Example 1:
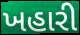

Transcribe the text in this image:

ખહારી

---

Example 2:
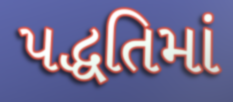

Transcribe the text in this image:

પદ્ધતિમાં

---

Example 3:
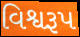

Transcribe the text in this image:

વિશ્વરૂપ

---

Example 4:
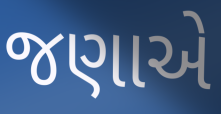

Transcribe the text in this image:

જણાએ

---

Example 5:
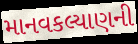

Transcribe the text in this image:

માનવકલ્યાણની